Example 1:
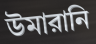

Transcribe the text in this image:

উমারানি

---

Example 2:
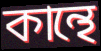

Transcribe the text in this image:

কান্থে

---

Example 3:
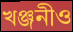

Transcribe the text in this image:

খঞ্জনীও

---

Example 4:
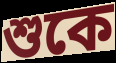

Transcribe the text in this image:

শুকে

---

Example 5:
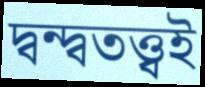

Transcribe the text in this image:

দ্বন্দ্বতত্ত্বই